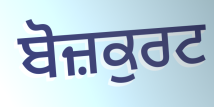
ਬੋਜ਼ਕੁਰਟ